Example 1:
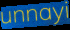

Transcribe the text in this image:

unnayi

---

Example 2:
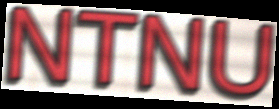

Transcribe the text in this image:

NTNU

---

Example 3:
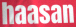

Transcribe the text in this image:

haasan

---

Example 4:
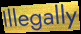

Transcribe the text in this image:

Illegally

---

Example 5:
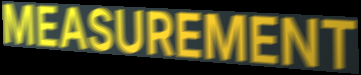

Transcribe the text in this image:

MEASUREMENT